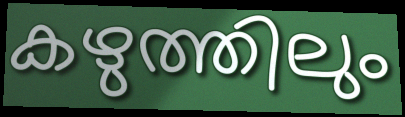
കഴുത്തിലും